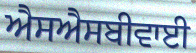
ਐਸਐਸਬੀਵਾਈ